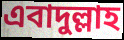
এবাদুল্লাহ